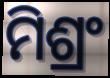
ମିଶ୍ରଂ